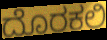
ದೊರಕಲಿ